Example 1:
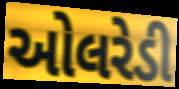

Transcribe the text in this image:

ઓલરેડી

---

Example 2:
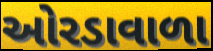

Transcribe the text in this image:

ઓરડાવાળા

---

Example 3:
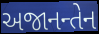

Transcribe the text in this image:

અજાનન્તેન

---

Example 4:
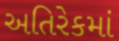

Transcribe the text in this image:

અતિરેકમાં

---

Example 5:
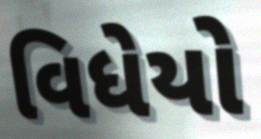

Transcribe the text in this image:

વિધેયો